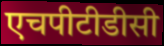
एचपीटीडीसी